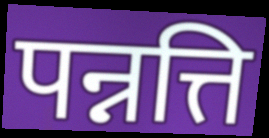
पन्नत्ति